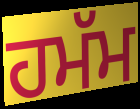
ਹਮੱਮ